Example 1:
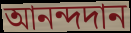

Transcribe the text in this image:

আনন্দদান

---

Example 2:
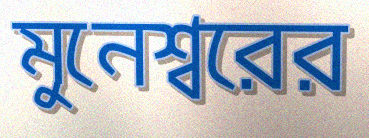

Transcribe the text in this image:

মুনেশ্বরের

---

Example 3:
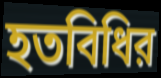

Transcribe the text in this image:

হতবিধির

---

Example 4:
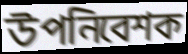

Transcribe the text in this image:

উপনিবেশক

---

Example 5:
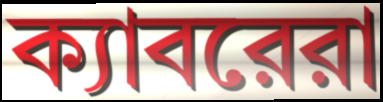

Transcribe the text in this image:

ক্যাবরেরা